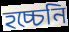
হচ্চেনি